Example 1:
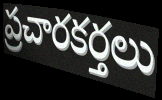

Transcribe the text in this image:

ప్రచారకర్తలు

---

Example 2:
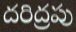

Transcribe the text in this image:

దరిద్రపు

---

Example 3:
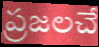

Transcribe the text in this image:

ప్రజలచే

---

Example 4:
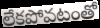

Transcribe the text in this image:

లేకపోవటంతో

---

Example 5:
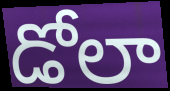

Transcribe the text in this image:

డోలా